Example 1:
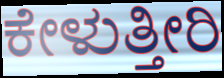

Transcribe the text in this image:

ಕೇಳುತ್ತೀರಿ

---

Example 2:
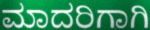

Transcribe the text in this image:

ಮಾದರಿಗಾಗಿ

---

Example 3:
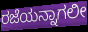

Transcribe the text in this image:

ರಜೆಯನ್ನಾಗಲೀ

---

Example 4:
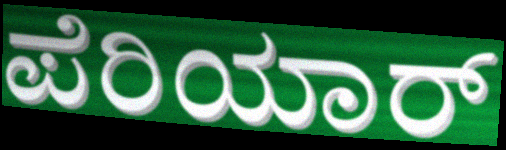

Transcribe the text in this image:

ಪೆರಿಯಾರ್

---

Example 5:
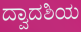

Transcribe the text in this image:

ದ್ವಾದಶಿಯ